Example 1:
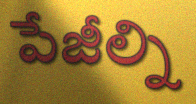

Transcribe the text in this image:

పేజీల్ని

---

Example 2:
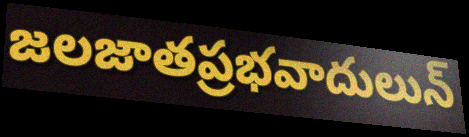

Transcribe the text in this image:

జలజాతప్రభవాదులున్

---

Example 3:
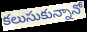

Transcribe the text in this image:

కలుసుకున్నానో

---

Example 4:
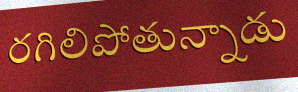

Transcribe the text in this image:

రగిలిపోతున్నాడు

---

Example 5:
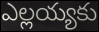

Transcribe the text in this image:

ఎల్లయ్యకు